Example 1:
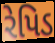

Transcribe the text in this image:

રેપિડ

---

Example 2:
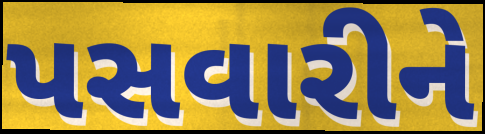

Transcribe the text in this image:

પસવારીને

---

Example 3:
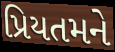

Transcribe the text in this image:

પ્રિયતમને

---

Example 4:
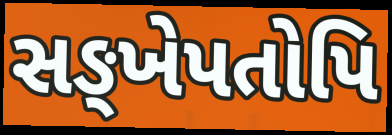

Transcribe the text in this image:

સઙ્ખેપતોપિ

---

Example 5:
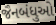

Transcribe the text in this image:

જૈનબંધુઓ